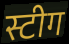
स्टीग